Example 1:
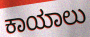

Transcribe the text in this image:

ಕಾಯಾಲು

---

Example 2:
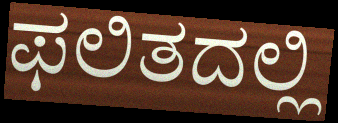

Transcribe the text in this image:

ಫಲಿತದಲ್ಲಿ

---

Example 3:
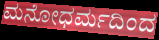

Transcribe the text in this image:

ಮನೋಧರ್ಮದಿಂದ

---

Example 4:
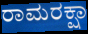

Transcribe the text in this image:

ರಾಮರಕ್ಷಾ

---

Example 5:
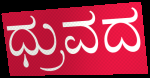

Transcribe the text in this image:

ಧ್ರುವದ